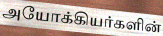
அயோக்கியர்களின்